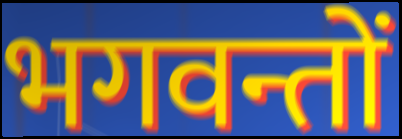
भगवन्तों